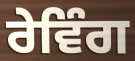
ਰੇਵਿੰਗ